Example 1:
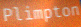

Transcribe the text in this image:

Plimpton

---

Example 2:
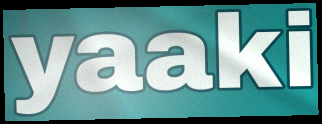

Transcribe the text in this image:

yaaki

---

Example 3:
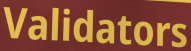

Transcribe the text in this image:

Validators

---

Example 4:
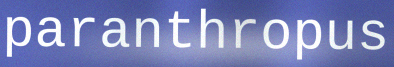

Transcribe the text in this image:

paranthropus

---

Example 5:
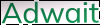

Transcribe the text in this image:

Adwait